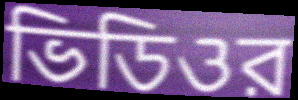
ভিডিওর